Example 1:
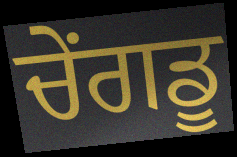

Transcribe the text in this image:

ਚੇਂਗਡੂ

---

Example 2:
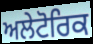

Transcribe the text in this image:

ਅਲੇਟੋਰਿਕ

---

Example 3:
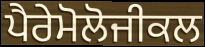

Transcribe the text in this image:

ਪੈਰੇਮੋਲੋਜੀਕਲ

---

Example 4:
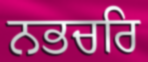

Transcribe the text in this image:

ਨਭਚਰਿ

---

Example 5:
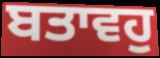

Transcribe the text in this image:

ਬਤਾਵਹੁ